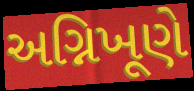
અગ્નિખૂણે